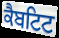
ਕੈਬਟਿਟ